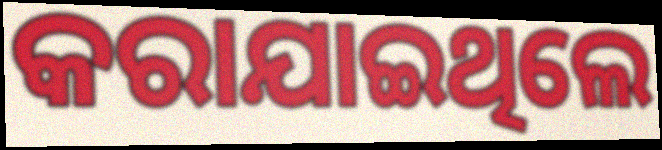
କରାଯାଇଥିଲେ